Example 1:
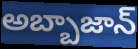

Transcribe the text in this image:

అబ్బాజాన్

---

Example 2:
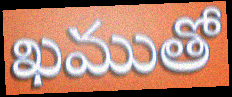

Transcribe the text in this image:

ఖముతో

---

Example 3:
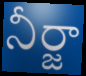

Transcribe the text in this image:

నీర్జా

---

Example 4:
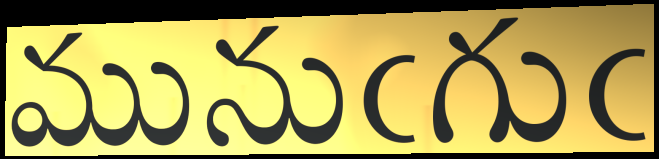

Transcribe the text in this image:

మునుఁగుఁ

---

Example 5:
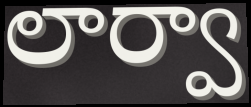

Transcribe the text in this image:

లార్వా